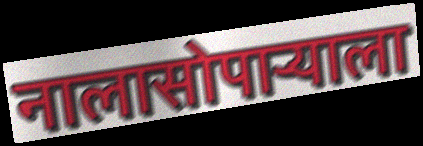
नालासोपाऱ्याला